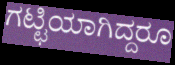
ಗಟ್ಟಿಯಾಗಿದ್ದರೂ